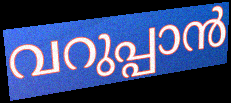
വറുപ്പാൻ